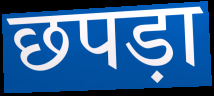
छपड़ा